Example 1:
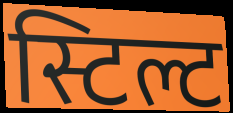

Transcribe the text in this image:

स्टिल्ट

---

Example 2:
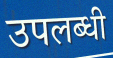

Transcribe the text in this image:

उपलब्धी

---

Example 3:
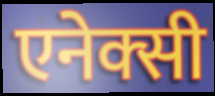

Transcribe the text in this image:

एनेक्‍सी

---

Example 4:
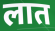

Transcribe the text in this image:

लात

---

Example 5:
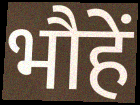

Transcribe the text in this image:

भौहें